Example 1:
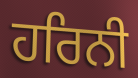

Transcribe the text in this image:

ਹਰਿਨੀ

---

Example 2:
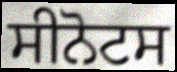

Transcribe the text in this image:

ਸੀਨੋਟਸ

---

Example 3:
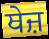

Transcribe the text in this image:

ਥੇਜ਼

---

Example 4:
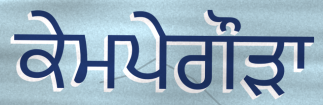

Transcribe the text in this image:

ਕੇਮਪੇਗੌੜਾ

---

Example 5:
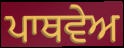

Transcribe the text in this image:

ਪਾਥਵੇਅ